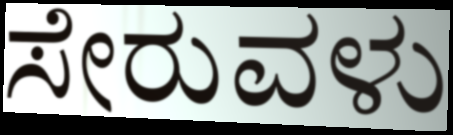
ಸೇರುವಳು